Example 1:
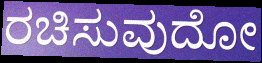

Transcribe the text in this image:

ರಚಿಸುವುದೋ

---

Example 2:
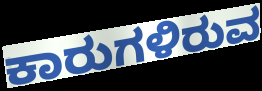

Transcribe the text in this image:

ಕಾರುಗಳಿರುವ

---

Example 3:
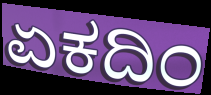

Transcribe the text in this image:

ಏಕದಿಂ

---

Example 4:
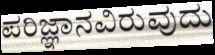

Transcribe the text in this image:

ಪರಿಜ್ಞಾನವಿರುವುದು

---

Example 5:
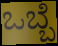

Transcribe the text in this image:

ಒಬ್ಬೆ